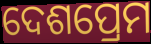
ଦେଶପ୍ରେମ